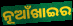
ନୂଆଁଖାଇର